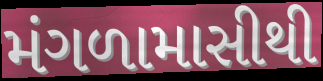
મંગળામાસીથી